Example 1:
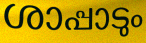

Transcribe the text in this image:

ശാപ്പാടും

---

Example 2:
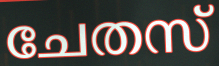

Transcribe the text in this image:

ചേതസ്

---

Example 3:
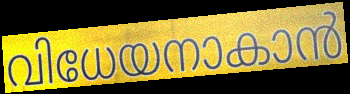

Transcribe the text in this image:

വിധേയനാകാൻ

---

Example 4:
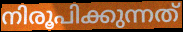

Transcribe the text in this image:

നിരൂപിക്കുന്നത്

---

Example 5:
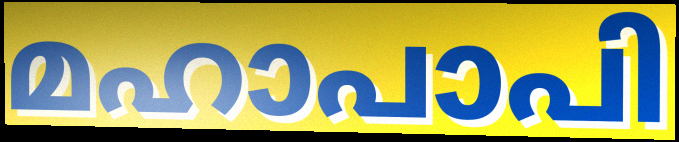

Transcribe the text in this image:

മഹാപാപി